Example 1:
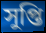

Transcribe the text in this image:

সুপ্তি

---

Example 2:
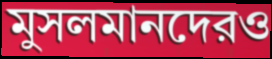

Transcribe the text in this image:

মুসলমানদেরও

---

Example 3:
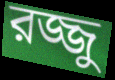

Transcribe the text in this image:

রজ্জু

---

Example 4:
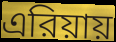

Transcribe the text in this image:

এরিয়ায়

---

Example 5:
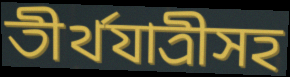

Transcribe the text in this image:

তীর্থযাত্রীসহ